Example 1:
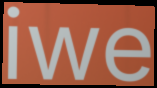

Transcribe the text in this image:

iwe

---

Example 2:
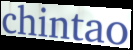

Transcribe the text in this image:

chintao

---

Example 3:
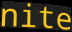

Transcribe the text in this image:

nite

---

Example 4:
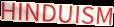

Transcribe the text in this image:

HINDUISM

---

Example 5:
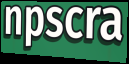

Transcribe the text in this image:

npscra